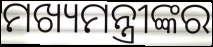
ମଖ୍ୟମନ୍ତ୍ରୀଙ୍କର